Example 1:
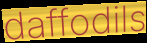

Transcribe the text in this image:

daffodils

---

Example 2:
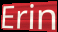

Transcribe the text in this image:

Erin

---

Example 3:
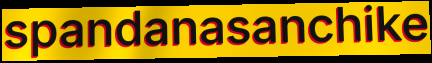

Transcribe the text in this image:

spandanasanchike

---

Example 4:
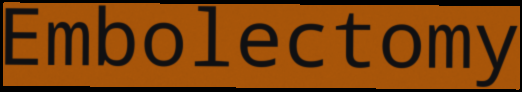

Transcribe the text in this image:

Embolectomy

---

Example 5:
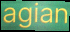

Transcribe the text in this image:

agian